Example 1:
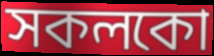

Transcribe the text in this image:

সকলকো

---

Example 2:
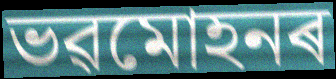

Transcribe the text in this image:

ভৱমোহনৰ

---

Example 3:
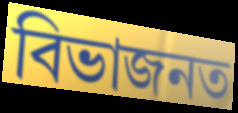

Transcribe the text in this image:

বিভাজনত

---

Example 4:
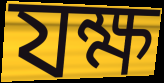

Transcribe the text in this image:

যক্ষ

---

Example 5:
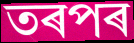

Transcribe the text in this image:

তৰপৰ